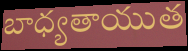
బాధ్యతాయుత